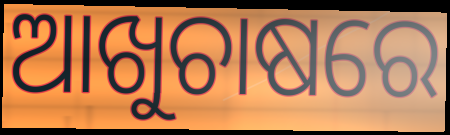
ଆଖୁଚାଷରେ